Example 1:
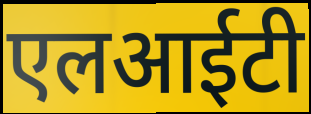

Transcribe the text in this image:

एलआईटी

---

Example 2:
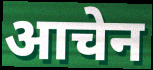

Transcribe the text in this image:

आचेन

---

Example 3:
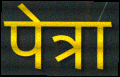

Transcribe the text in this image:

पेत्रा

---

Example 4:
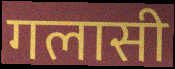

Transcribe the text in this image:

गलासी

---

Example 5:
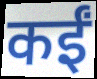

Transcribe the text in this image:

कईं